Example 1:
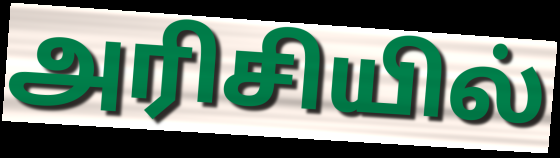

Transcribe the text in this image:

அரிசியில்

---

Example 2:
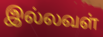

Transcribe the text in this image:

இல்லவள்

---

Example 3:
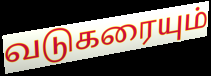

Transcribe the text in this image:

வடுகரையும்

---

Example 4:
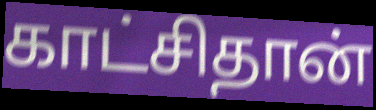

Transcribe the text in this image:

காட்சிதான்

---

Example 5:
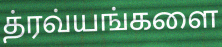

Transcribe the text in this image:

த்ரவ்யங்களை